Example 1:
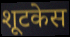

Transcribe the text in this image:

शूटकेस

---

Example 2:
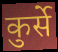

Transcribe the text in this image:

कुर्से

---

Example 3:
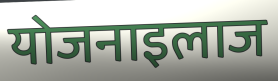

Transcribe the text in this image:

योजनाइलाज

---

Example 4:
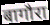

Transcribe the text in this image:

बागौरा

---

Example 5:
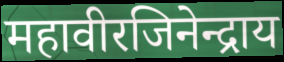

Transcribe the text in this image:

महावीरजिनेन्द्राय